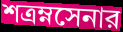
শত্রম্নসেনার